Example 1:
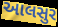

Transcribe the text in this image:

આલસુર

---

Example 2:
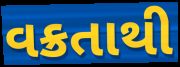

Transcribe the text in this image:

વક્રતાથી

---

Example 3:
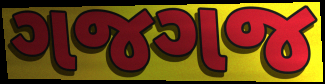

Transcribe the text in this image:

ગજગજ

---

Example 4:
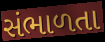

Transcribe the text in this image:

સંભાળતા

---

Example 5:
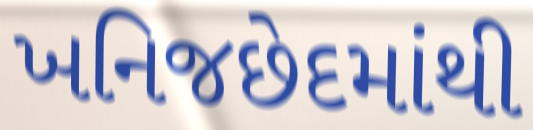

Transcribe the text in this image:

ખનિજછેદમાંથી